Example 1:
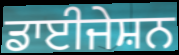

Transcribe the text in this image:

ਡਾਈਜੇਸ਼ਨ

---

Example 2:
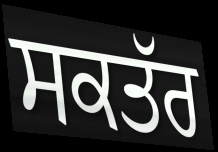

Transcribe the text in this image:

ਸਕਤੱਰ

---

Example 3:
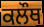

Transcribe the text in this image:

ਕਲੌਥ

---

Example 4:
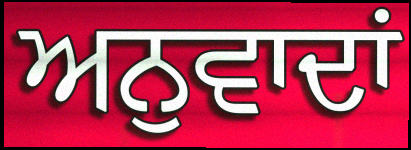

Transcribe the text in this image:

ਅਨੁਵਾਦਾਂ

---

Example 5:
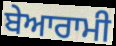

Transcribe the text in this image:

ਬੇਆਰਾਮੀ